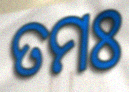
ତମଃ